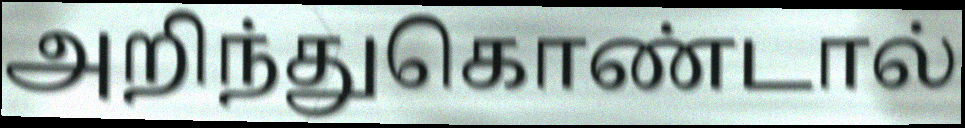
அறிந்துகொண்டால்